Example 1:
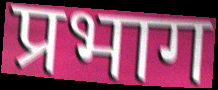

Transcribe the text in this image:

प्रभाग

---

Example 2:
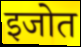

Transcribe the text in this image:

इजोत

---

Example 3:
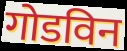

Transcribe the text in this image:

गोडविन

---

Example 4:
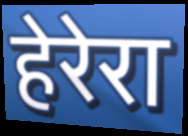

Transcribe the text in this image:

हेरेरा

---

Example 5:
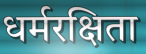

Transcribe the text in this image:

धर्मरक्षिता